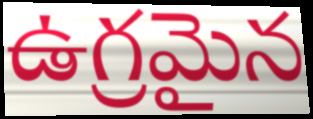
ఉగ్రమైన